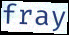
fray